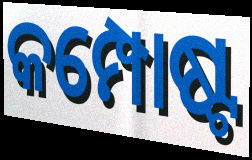
କମ୍ପୋଷ୍ଟ